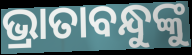
ଭ୍ରାତାବନ୍ଧୁଙ୍କୁ